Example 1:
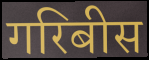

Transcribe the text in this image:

गरिबीस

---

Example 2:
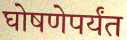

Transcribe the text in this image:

घोषणेपर्यंत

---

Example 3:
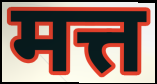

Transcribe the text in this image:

मत्त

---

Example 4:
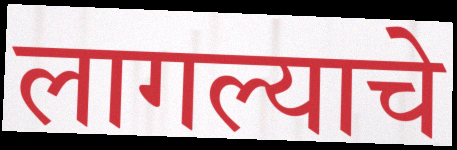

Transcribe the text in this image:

लागल्याचे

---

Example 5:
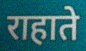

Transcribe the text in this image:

राहाते